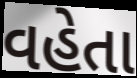
વહેતા